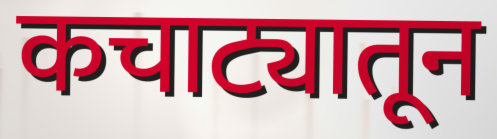
कचाट्यातून